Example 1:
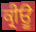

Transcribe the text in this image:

ਕ੍ਰੀਊ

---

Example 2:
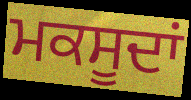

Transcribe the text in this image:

ਮਕਸੂਦਾਂ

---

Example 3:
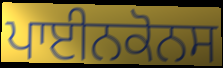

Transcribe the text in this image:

ਪਾਈਨਕੋਨਸ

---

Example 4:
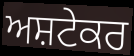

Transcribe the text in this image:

ਅਸ਼ਟੇਕਰ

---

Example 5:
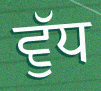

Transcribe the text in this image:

ਵੁੱਧ